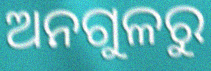
ଅନଗୁଳରୁ